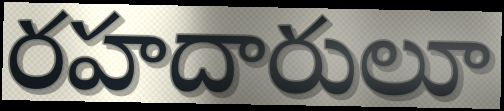
రహదారులూ